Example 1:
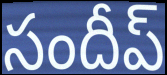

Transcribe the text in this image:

సందీప్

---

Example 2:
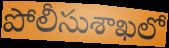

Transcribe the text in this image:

పోలీసుశాఖలో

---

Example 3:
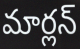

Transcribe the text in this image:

మార్లన్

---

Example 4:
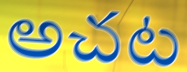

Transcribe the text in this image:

అచట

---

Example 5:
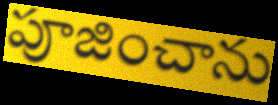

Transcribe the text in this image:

పూజించాను